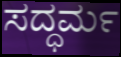
ಸದ್ಧರ್ಮ